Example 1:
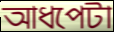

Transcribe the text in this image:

আধপেটা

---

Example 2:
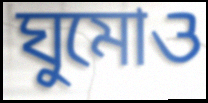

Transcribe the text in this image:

ঘুমোও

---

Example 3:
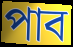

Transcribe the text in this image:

পাব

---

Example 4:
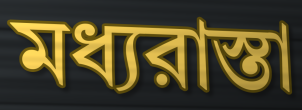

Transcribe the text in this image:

মধ্যরাস্তা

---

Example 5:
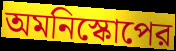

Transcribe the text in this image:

অমনিস্কোপের